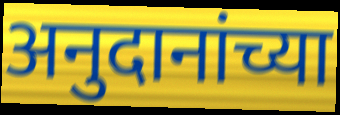
अनुदानांच्या